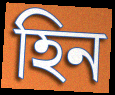
হিন